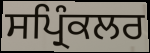
ਸਪ੍ਰਿੰਕਲਰ